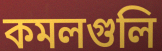
কমলগুলি